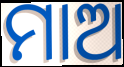
ମାଅ